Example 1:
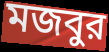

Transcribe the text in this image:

মজবুর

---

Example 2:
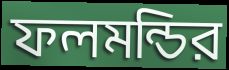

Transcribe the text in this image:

ফলমন্ডির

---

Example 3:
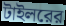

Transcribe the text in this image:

টাইলরের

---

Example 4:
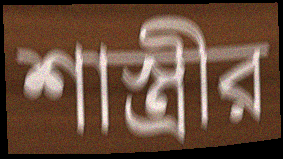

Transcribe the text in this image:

শাস্ত্রীর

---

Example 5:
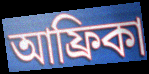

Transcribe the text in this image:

আফ্রিকা